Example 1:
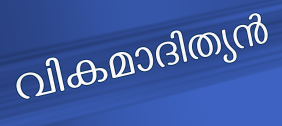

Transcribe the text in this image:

വികമാദിത്യൻ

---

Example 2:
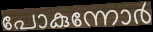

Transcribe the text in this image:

പോകുന്നോർ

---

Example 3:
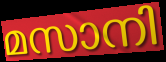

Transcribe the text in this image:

മസാനി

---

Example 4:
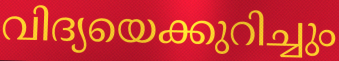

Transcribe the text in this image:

വിദ്യയെക്കുറിച്ചും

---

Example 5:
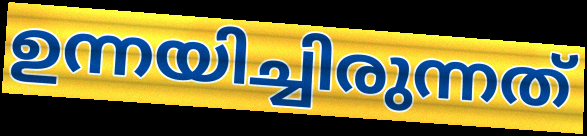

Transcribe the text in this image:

ഉന്നയിച്ചിരുന്നത്